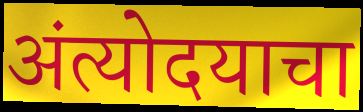
अंत्योदयाचा